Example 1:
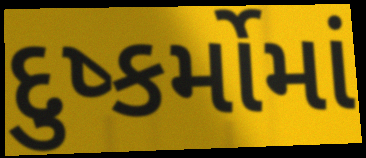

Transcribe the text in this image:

દુષ્કર્મોમાં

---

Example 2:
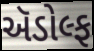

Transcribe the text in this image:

ઍડોલ્ફ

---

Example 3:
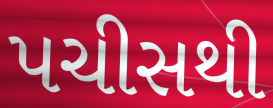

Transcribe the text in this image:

પચીસથી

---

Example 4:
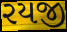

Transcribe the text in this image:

રયજી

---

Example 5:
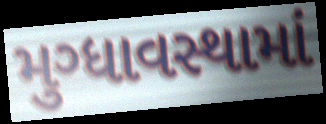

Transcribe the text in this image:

મુગ્ધાવસ્થામાં